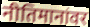
नीतिमानांवर